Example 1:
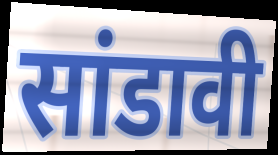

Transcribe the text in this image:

सांडावी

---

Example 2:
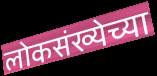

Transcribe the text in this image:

लोकसंख्येच्या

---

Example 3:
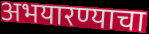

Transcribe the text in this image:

अभयारण्याचा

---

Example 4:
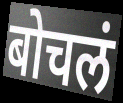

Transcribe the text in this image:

बोचलं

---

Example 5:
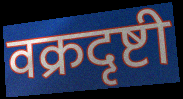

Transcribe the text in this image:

वक्रदृष्टी